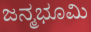
ಜನ್ಮಭೂಮಿ